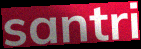
santri